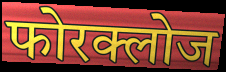
फोरक्लोज